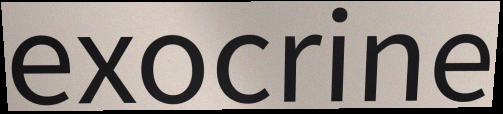
exocrine